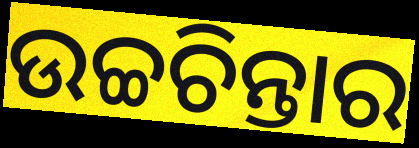
ଉଚ୍ଚଚିନ୍ତାର